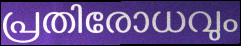
പ്രതിരോധവും